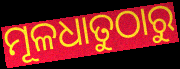
ମୂଳଧାତୁଠାରୁ